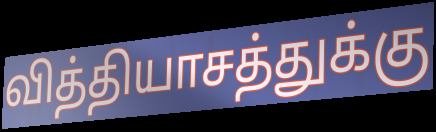
வித்தியாசத்துக்கு